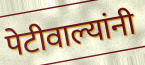
पेटीवाल्यांनी